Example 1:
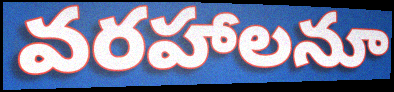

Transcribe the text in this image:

వరహాలనూ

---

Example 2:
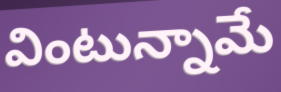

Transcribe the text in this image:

వింటున్నామే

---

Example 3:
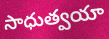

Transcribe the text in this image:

సాధుత్వయా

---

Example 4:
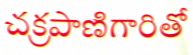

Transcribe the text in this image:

చక్రపాణిగారితో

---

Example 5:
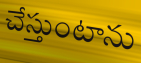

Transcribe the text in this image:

చేస్తుంటాను